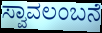
ಸ್ವಾವಲಂಬನೆ